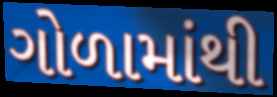
ગોળામાંથી